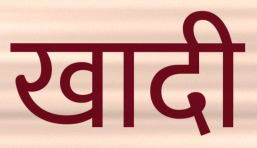
खादी